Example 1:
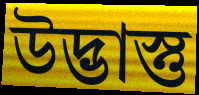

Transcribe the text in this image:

উদ্ভাস্তু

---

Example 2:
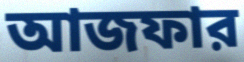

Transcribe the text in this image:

আজফার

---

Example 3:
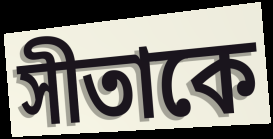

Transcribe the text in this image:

সীতাকে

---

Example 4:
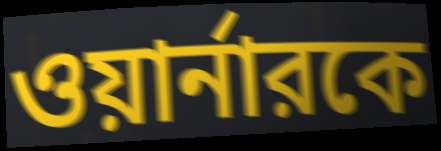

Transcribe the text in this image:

ওয়ার্নারকে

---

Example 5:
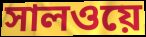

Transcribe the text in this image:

সালওয়ে